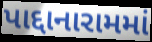
પાદ્દાનારામમાં